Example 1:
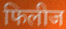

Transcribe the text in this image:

फिलीज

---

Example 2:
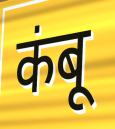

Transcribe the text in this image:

कंबू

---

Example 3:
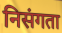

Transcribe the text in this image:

निसंगता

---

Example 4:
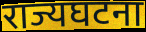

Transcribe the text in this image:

राज्यघटना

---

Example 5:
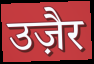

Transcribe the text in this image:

उज़ैर